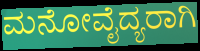
ಮನೋವೈದ್ಯರಾಗಿ